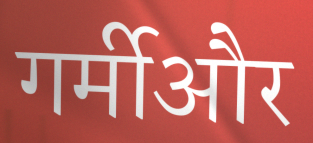
गर्मीऔर